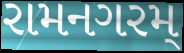
રામનગરમ્